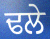
ਢਲੇ